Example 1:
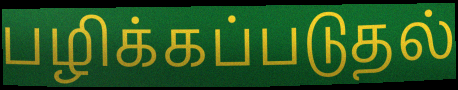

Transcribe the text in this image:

பழிக்கப்படுதல்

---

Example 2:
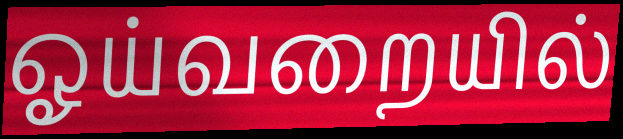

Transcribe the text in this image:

ஓய்வறையில்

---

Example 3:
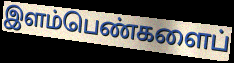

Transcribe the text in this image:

இளம்பெண்களைப்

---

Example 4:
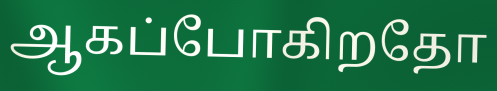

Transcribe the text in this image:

ஆகப்போகிறதோ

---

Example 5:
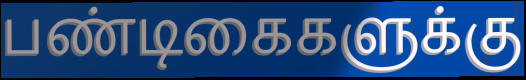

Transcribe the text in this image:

பண்டிகைகளுக்கு